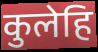
कुलेहि